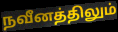
நவீனத்திலும்